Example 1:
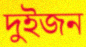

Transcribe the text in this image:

দুইজন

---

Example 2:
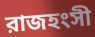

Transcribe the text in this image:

রাজহংসী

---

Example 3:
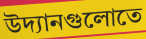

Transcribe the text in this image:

উদ্যানগুলোতে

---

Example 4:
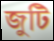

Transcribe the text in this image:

জুটি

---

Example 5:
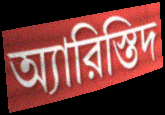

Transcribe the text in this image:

অ্যারিস্তিদ